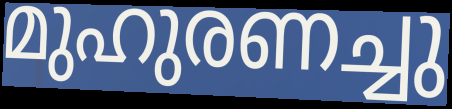
മുഹുരണച്ചു